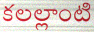
కలల్లాంటి